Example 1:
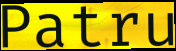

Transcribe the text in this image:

Patru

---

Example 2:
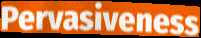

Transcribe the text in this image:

Pervasiveness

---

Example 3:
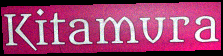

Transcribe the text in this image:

Kitamura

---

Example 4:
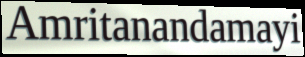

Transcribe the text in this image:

Amritanandamayi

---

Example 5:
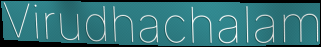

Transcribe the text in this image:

Virudhachalam